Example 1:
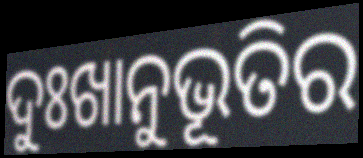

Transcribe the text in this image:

ଦୁଃଖାନୁଭୂତିର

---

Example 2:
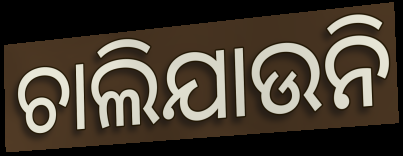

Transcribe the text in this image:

ଚାଲିଯାଉନି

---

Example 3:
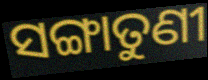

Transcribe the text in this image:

ସଙ୍ଗାତୁଣୀ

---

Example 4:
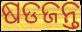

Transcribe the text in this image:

ଷଡଜନ୍ତ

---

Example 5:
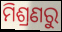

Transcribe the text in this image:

ମିଶ୍ରଣରୁ